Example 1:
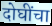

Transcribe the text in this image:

दोघींचा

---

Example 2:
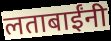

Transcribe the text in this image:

लताबाईंनी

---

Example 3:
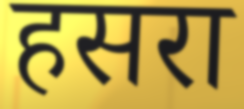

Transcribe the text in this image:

हसरा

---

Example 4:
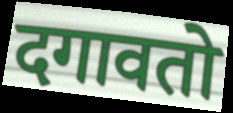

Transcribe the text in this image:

दगावतो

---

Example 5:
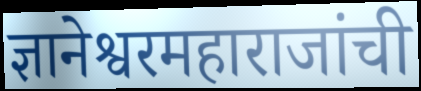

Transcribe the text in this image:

ज्ञानेश्वरमहाराजांची